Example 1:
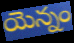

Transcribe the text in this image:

యెన్నం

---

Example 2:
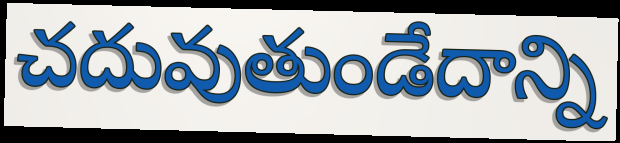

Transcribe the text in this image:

చదువుతుండేదాన్ని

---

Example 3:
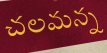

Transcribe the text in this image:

చలమన్న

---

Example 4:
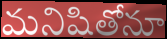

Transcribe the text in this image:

మనిషితోనూ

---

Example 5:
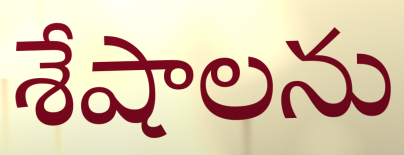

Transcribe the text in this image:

శేషాలను